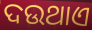
ଦଉଥାଏ